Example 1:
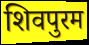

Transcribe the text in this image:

शिवपुरम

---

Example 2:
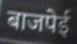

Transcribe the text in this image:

बाजपेई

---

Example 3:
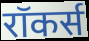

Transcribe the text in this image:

रॉकर्स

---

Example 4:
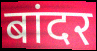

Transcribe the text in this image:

बांदर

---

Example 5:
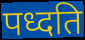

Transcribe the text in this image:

पध्दति